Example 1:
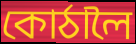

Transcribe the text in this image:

কোঠালৈ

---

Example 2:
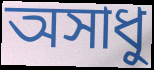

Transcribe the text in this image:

অসাধু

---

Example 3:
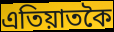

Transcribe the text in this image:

এতিয়াতকৈ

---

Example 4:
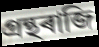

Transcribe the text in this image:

গ্ৰন্থৰাজি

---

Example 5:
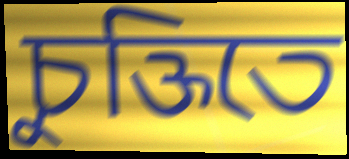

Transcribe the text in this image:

চুক্তিতে